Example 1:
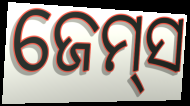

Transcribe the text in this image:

ଜେମ୍‍ସ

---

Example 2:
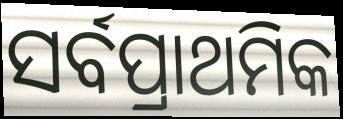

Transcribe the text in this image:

ସର୍ବପ୍ରାଥମିକ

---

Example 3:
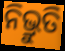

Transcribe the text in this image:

ନିଭ୍ରୁତି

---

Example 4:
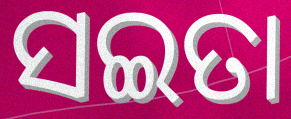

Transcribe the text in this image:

ସଇତା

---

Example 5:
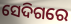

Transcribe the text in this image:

ସେଦିଗରେ